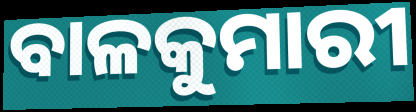
ବାଳକୁମାରୀ